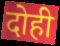
दोही